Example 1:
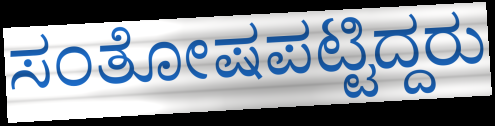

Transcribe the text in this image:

ಸಂತೋಷಪಟ್ಟಿದ್ದರು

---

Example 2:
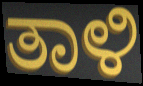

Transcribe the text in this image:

ತಾಳಿ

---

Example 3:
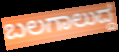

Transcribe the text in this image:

ಬಲಗಾಲುದ್ದ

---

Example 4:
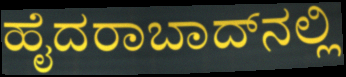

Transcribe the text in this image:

ಹೈದರಾಬಾದ್‌ನಲ್ಲಿ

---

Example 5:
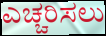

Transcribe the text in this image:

ಎಚ್ಚರಿಸಲು